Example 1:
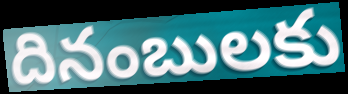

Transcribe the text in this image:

దినంబులకు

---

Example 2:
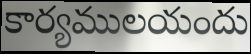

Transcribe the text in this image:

కార్యములయందు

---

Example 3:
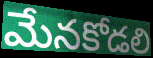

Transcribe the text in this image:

మేనకోడలి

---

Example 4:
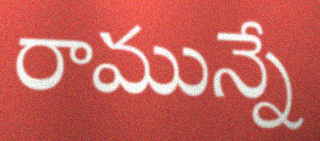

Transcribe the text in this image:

రామున్నే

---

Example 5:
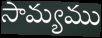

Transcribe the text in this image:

సామ్యము